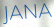
JANA